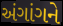
અંગાંગને